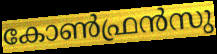
കോൺഫ്രൻസു